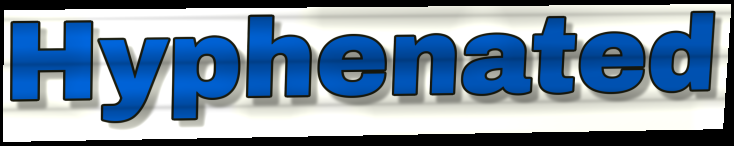
Hyphenated